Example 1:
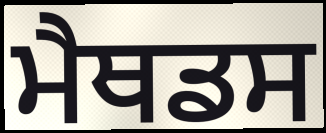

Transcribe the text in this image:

ਮੈਥਡਸ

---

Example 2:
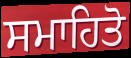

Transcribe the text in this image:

ਸਮਾਹਿਤੋ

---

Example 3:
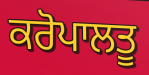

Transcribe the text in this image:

ਕਰੋਪਾਲਤੂ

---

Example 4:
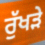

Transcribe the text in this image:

ਰੁੱਖੜੇ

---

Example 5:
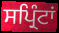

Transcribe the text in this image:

ਸਪ੍ਰਿੰਟਾਂ